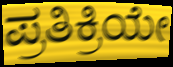
ಪ್ರತಿಕ್ರಿಯೇ